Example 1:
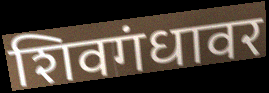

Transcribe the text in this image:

शिवगंधावर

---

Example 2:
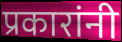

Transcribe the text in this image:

प्रकारांनी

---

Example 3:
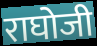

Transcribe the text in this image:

राघोजी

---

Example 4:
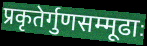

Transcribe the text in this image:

प्रकृतेर्गुणसम्मूढाः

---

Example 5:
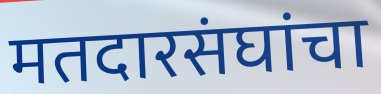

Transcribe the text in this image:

मतदारसंघांचा